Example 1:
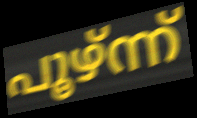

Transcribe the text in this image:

പൂഴ്ന്ന്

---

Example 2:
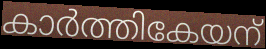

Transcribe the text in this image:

കാർത്തികേയന്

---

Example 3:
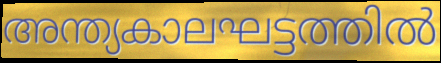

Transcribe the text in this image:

അന്ത്യകാലഘട്ടത്തിൽ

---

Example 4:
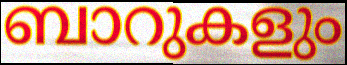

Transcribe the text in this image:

ബാറുകളും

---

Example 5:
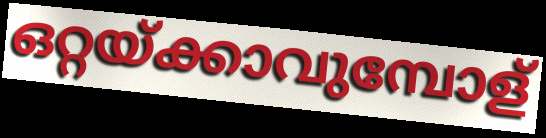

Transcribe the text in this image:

ഒറ്റയ്ക്കാവുമ്പോള്